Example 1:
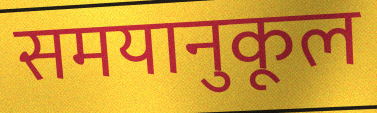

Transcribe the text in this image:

समयानुकूल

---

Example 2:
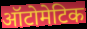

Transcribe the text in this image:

ऑटोमेटिक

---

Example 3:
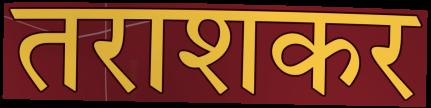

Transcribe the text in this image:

तराशकर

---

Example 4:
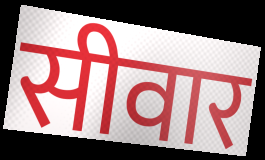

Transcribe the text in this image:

सीवार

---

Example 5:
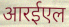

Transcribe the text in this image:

आरईएल